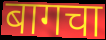
बागचा